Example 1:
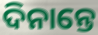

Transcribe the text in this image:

ଦିନାନ୍ତେ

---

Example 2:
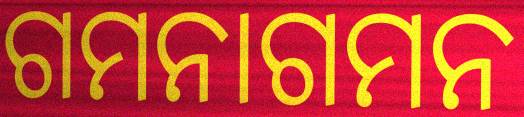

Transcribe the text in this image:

ଗମନାଗମନ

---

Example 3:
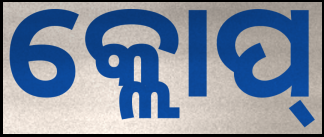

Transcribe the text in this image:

କ୍ଲୋପ୍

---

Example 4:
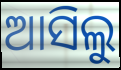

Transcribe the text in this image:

ଆସିଲୁ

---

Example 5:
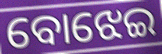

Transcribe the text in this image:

ବୋଝେଇ